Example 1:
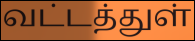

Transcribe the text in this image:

வட்டத்துள்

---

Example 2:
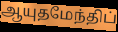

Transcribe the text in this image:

ஆயுதமேந்திப்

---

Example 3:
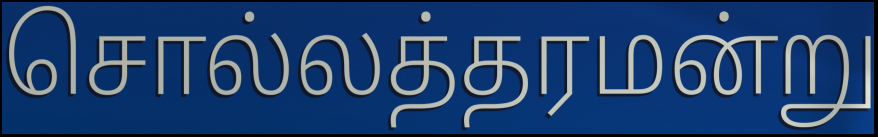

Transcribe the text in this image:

சொல்லத்தரமன்று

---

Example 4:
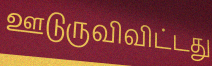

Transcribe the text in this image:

ஊடுருவிவிட்டது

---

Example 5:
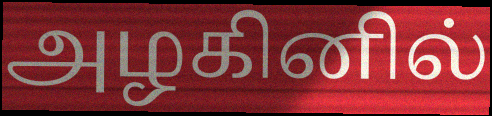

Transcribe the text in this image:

அழகினில்